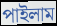
পাইলাম